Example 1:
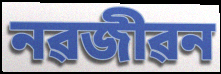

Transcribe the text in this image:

নৱজীৱন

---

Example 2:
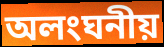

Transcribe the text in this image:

অলংঘনীয়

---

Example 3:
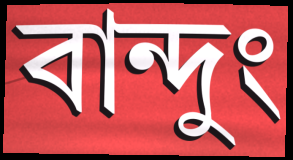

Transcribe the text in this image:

বান্দুং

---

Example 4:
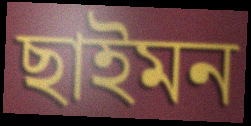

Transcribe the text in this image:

ছাইমন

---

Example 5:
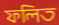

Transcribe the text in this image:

ফলিত